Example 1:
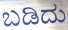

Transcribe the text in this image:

ಬಡಿದು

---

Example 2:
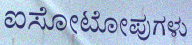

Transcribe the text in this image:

ಐಸೋಟೋಪುಗಳು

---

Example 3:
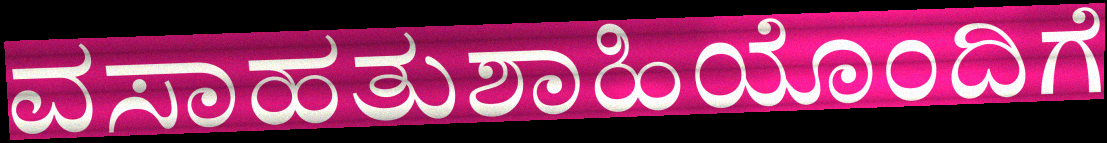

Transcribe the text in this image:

ವಸಾಹತುಶಾಹಿಯೊಂದಿಗೆ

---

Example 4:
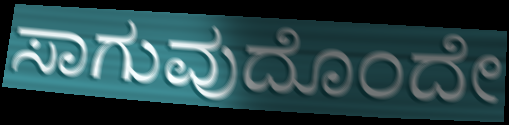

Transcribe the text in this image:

ಸಾಗುವುದೊಂದೇ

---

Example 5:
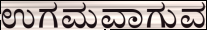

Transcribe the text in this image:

ಉಗಮವಾಗುವ